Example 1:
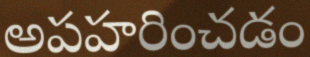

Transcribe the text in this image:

అపహరించడం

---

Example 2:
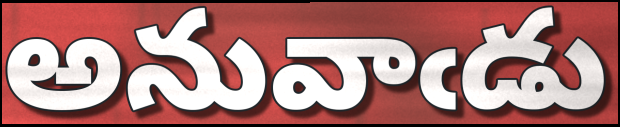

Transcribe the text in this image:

అనువాఁడు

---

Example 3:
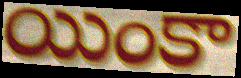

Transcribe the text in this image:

యింకా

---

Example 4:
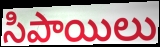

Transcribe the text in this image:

సిపాయిలు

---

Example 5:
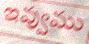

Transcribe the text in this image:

ఇవ్వుము